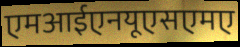
एमआईएनयूएसएमए